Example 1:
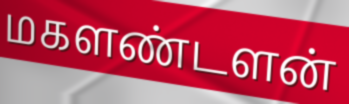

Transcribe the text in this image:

மகளண்டளன்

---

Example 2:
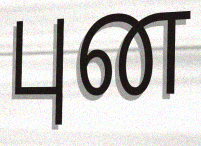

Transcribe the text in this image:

புன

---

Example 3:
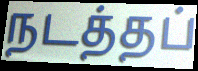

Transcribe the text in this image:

நடத்தப்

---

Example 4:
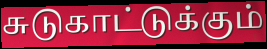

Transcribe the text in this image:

சுடுகாட்டுக்கும்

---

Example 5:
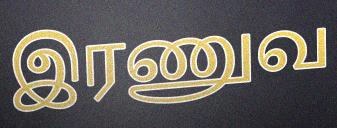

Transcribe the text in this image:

இரணுவ